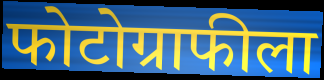
फोटोग्राफीला